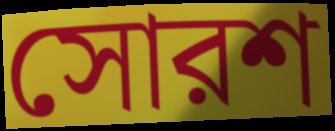
সোরশ